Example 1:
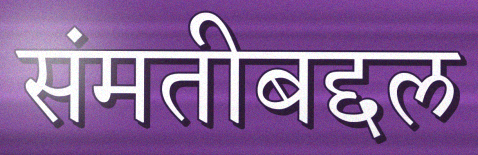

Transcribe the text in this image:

संमतीबद्दल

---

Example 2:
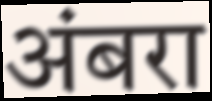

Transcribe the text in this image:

अंबरा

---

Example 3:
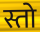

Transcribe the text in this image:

स्तो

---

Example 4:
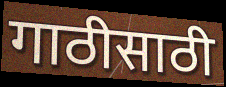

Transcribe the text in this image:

गाठीसाठी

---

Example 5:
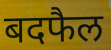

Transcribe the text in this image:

बदफैल